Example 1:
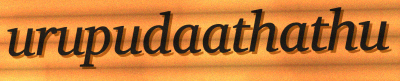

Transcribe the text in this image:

urupudaathathu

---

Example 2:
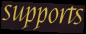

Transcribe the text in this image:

supports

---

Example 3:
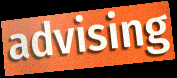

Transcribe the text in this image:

advising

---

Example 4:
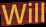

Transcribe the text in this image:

Will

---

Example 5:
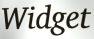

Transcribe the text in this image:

Widget